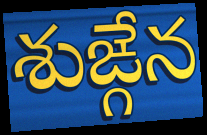
శుఙ్గేన